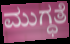
ಮುಗ್ಧತೆ